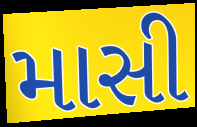
માસી